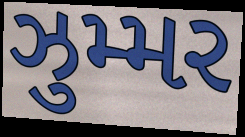
ઝુમ્મર